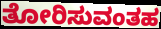
ತೋರಿಸುವಂತಹ